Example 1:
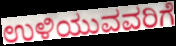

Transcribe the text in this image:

ಉಳಿಯುವವರಿಗೆ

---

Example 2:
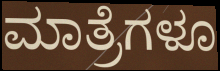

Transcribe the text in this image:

ಮಾತ್ರೆಗಳೂ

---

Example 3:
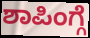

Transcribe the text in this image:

ಶಾಪಿಂಗ್ಗೆ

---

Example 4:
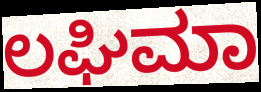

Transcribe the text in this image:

ಲಘಿಮಾ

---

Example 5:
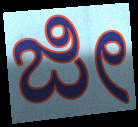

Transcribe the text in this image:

ಜೀ